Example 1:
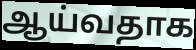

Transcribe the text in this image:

ஆய்வதாக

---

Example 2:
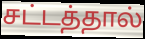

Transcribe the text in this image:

சட்டத்தால்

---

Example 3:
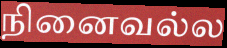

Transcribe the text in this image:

நினைவல்ல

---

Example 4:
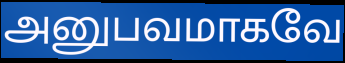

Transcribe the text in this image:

அனுபவமாகவே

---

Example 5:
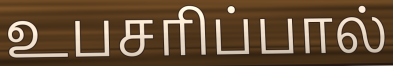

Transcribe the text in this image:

உபசரிப்பால்